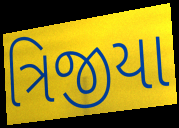
ત્રિજીયા